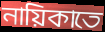
নায়িকাতে